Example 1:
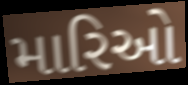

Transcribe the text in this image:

મારિઓ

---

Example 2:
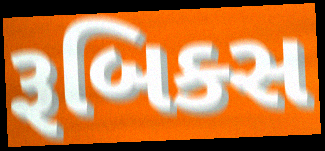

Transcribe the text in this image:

રૂબિક્સ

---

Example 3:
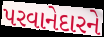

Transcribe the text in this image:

પરવાનેદારને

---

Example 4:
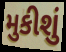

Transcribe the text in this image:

મુકીશું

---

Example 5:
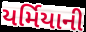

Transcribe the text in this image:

યર્મિયાની